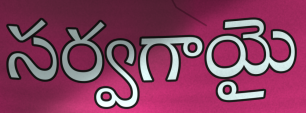
సర్వగాయై